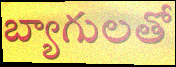
బ్యాగులతో